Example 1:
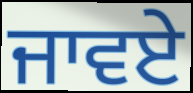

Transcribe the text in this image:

ਜਾਵਏ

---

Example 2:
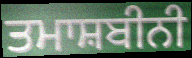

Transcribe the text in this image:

ਤਮਾਸ਼ਬੀਨੀ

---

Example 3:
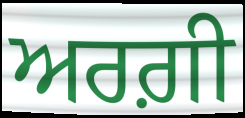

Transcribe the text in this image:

ਅਰਗ਼ੀ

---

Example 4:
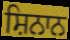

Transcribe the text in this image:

ਸ਼ਿਨਾਨ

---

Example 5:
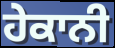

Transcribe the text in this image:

ਹੇਕਾਨੀ